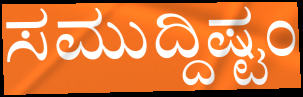
ಸಮುದ್ದಿಷ್ಟಂ